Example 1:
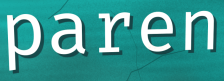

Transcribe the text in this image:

paren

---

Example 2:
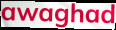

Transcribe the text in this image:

awaghad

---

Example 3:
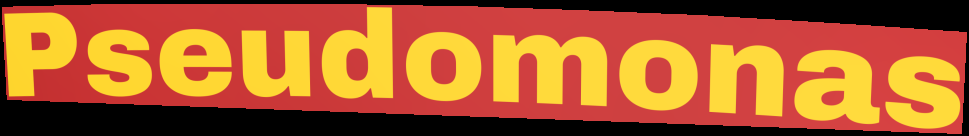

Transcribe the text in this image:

Pseudomonas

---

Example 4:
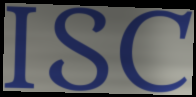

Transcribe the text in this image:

ISC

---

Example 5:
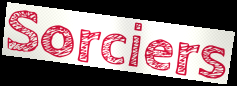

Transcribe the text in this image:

Sorciers